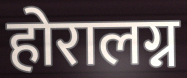
होरालग्न